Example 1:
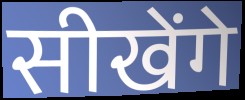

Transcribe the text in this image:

सीखेंगे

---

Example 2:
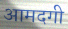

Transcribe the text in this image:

आमदगी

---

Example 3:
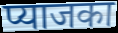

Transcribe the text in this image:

प्याजका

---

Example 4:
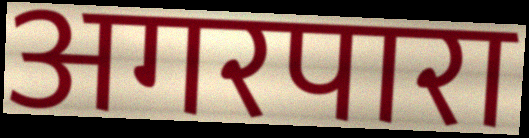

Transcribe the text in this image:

अगरपारा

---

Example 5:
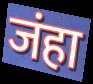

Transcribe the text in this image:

जंहा